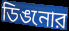
ডিঙনোর